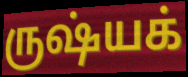
ருஷ்யக்